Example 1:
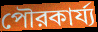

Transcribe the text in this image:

পৌরকার্য্য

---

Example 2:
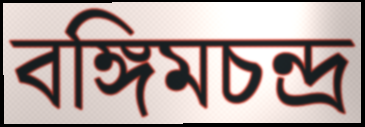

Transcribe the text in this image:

বঙ্গিমচন্দ্র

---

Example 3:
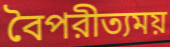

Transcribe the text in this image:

বৈপরীত্যময়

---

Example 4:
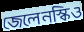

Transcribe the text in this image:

জেলেনস্কিও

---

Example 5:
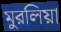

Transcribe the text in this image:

মুরলিয়া